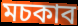
মচকাব